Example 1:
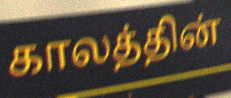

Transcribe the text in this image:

காலத்தின்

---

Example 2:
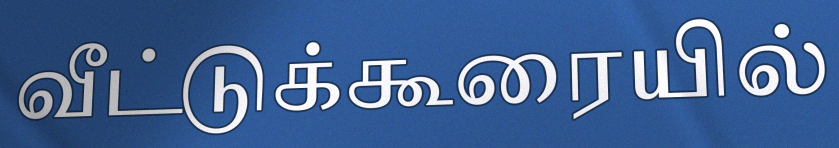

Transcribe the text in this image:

வீட்டுக்கூரையில்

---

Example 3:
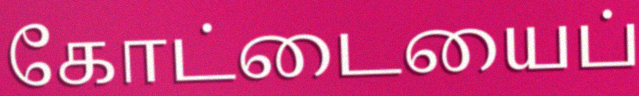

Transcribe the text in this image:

கோட்டையைப்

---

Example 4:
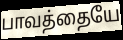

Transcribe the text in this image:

பாவத்தையே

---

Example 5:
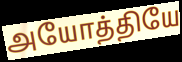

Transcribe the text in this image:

அயோத்தியே